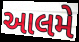
આલમે